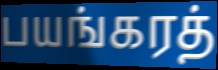
பயங்கரத்